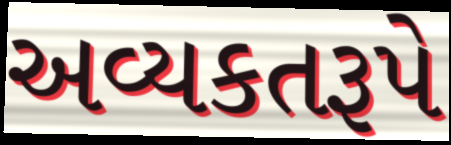
અવ્યકતરૂપે